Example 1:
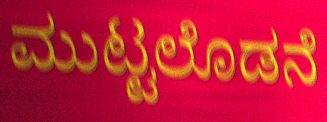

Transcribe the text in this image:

ಮುಟ್ಟಲೊಡನೆ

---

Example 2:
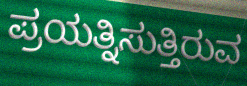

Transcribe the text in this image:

ಪ್ರಯತ್ನಿಸುತ್ತಿರುವ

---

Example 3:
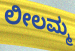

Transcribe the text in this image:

ಲೀಲಮ್ಮ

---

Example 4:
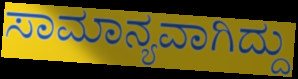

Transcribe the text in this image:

ಸಾಮಾನ್ಯವಾಗಿದ್ದು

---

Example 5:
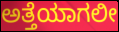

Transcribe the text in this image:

ಅತ್ತೆಯಾಗಲೀ